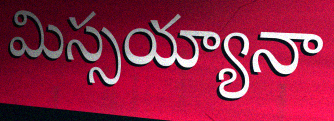
మిస్సయ్యానా